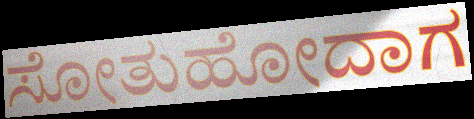
ಸೋತುಹೋದಾಗ